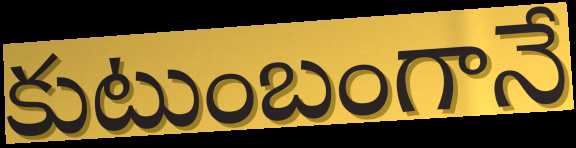
కుటుంబంగానే